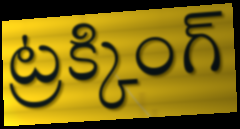
ట్రక్కింగ్